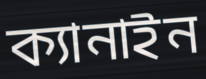
ক্যানাইন